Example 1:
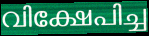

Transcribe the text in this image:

വിക്ഷേപിച്ച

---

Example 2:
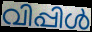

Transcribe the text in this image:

വിപ്പിൾ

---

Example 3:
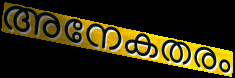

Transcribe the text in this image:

അനേകതരം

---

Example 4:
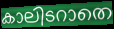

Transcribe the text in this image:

കാലിടറാതെ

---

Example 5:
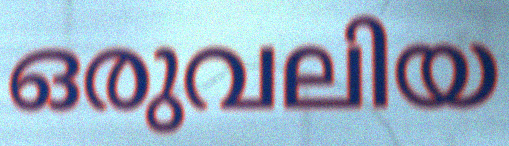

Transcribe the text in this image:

ഒരുവലിയ